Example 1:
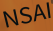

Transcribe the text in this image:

NSAI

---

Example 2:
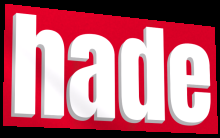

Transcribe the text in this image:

hade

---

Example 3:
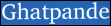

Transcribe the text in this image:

Ghatpande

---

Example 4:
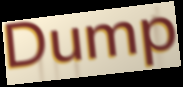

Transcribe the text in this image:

Dump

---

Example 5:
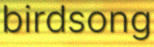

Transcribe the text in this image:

birdsong